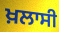
ਖ਼ਲਾਸੀ